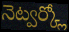
నెట్వర్క్లో